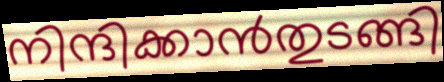
നിന്ദിക്കാൻതുടങ്ങി